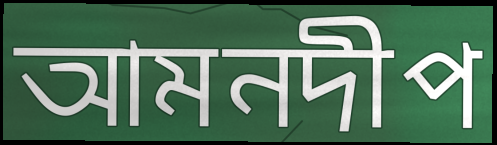
আমনদীপ